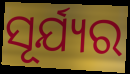
ସୂର୍ଯ୍ୟର